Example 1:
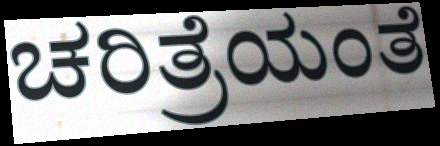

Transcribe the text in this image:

ಚರಿತ್ರೆಯಂತೆ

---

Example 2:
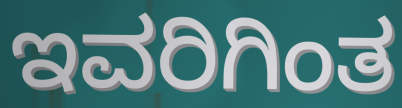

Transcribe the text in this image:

ಇವರಿಗಿಂತ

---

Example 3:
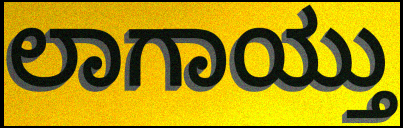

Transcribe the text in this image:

ಲಾಗಾಯ್ತು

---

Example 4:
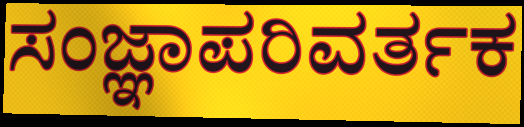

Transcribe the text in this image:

ಸಂಜ್ಞಾಪರಿವರ್ತಕ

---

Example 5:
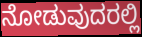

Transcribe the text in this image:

ನೋಡುವುದರಲ್ಲಿ